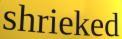
shrieked